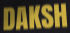
DAKSH